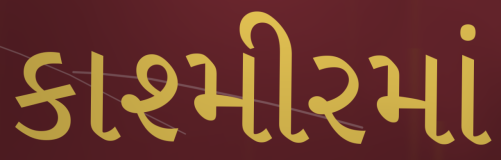
કાશ્મીરમાં